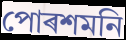
পোৰশমনি